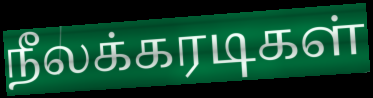
நீலக்கரடிகள்